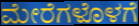
ಮೇರೆಗಳೊಳಗೆ